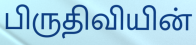
பிருதிவியின்